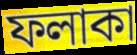
ফলাকা